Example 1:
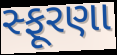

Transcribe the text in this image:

સ્ફૂરણા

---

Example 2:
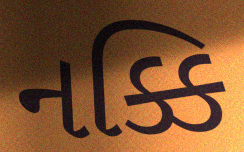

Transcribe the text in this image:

નક્કિ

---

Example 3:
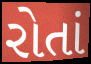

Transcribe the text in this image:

રોતાં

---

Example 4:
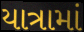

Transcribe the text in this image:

યાત્રામાં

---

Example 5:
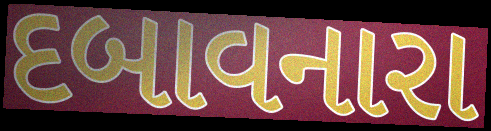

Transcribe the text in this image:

દબાવનારા